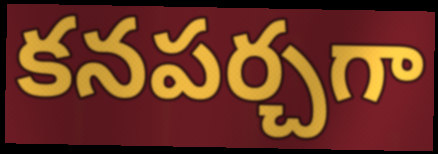
కనపర్చగా